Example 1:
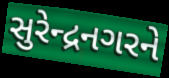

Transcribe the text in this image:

સુરેન્દ્રનગરને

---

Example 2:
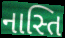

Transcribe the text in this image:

નાસ્તિ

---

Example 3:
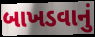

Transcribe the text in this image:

બાખડવાનું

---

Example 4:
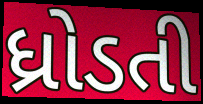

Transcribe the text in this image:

ધ્રોડતી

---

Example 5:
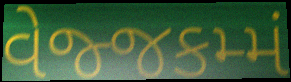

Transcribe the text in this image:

વેજ્જકમ્મં